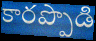
కారప్పొడి